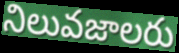
నిలువజాలరు